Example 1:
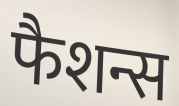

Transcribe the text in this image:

फैशन्स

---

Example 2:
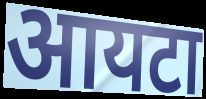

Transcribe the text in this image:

आयटा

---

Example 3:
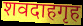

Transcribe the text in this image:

शवदाहगृह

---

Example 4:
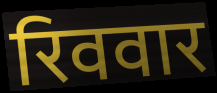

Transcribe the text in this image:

रिववार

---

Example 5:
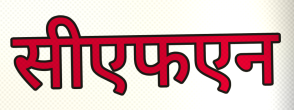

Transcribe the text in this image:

सीएफएन